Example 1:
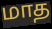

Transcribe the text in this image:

மாத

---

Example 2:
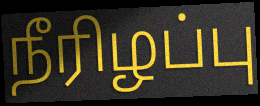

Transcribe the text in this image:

நீரிழப்பு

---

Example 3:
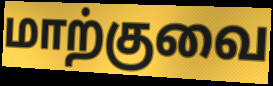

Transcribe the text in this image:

மாற்குவை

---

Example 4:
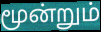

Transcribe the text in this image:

மூன்றும்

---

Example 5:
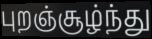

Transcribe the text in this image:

புறஞ்சூழ்ந்து